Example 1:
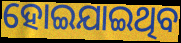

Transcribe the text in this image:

ହୋଇଯାଇଥିବ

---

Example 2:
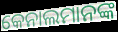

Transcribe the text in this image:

କେନାଲମାନଙ୍କ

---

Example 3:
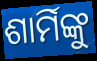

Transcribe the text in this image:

ଶାର୍ମିଙ୍କୁ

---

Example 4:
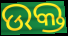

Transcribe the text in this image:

ଉକ୍ତ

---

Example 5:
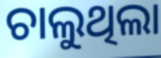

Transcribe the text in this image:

ଚାଲୁଥିଲା